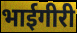
भाईगीरी